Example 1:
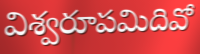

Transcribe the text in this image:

విశ్వరూపమిదివో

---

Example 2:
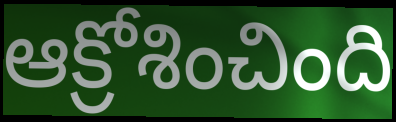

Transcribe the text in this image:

ఆక్రోశించింది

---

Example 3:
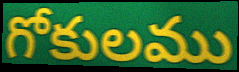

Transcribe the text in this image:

గోకులము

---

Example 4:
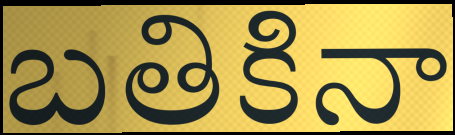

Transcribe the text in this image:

బతికినా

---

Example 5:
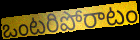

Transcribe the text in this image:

ఒంటరిపోరాటం